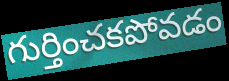
గుర్తించకపోవడం